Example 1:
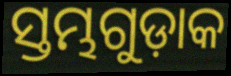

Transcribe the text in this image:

ସ୍ତମ୍ଭଗୁଡ଼ାକ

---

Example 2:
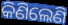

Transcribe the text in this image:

କିଣିଲେଣି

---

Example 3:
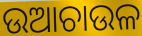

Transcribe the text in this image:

ଉଆଚାଉଳ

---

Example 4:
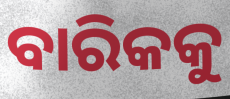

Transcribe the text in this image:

ବାରିକକୁ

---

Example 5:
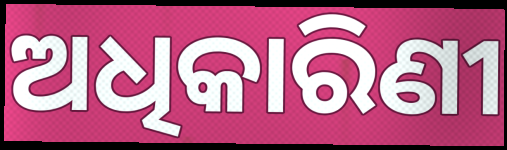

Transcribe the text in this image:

ଅଧିକାରିଣୀ